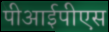
पीआईपीएस